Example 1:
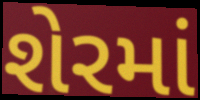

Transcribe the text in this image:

શેરમાં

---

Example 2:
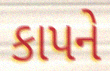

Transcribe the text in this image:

કાપને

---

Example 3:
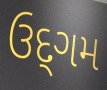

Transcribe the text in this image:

ઉદ્‌ગમ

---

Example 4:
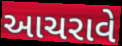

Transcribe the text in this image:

આચરાવે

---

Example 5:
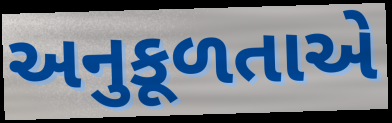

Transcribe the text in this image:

અનુકૂળતાએ